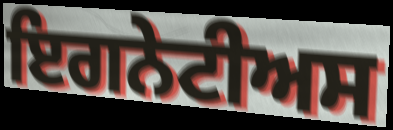
ਇਗਨੇਟੀਅਸ